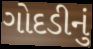
ગોદડીનું